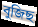
বুজিছ